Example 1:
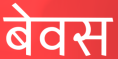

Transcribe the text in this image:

बेवस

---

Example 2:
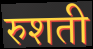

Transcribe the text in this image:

रुशती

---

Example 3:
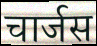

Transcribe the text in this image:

चार्जस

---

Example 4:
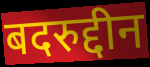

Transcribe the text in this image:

बदरुद्दीन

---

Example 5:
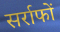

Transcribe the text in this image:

सर्राफों